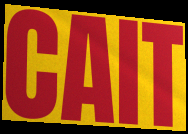
CAIT